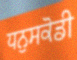
ਧਨੁਸਕੋਡੀ